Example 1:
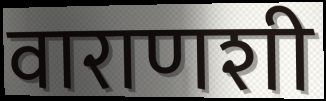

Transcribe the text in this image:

वाराणशी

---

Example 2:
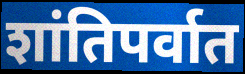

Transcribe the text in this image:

शांतिपर्वात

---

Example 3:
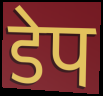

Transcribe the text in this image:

डेप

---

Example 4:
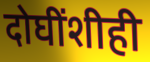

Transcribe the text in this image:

दोघींशीही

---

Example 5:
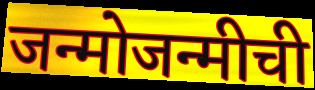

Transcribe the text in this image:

जन्मोजन्मीची